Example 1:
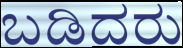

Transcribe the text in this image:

ಬಡಿದರು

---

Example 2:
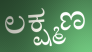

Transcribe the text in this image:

ಲಕ್ಷ್ಮಣ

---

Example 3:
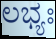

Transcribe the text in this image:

ಲಭ್ಯಃ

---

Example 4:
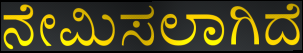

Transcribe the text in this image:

ನೇಮಿಸಲಾಗಿದೆ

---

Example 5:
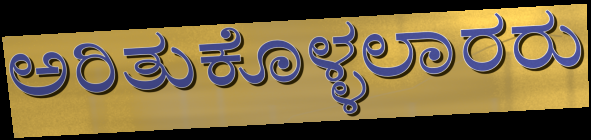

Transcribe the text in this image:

ಅರಿತುಕೊಳ್ಳಲಾರರು